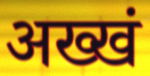
अख्खं